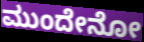
ಮುಂದೇನೋ